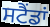
ਸਟੈਂਡਾਂ